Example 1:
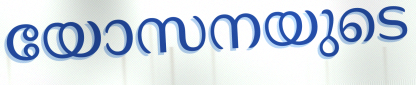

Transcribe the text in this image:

യോസനയുടെ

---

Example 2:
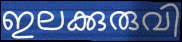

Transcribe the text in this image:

ഇലക്കുരുവി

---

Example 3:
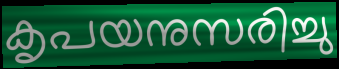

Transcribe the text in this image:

കൃപയനുസരിച്ചു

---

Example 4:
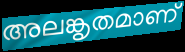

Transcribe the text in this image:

അലങ്കൃതമാണ്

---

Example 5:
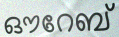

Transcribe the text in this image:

ഔറേബ്